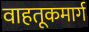
वाहतूकमार्ग